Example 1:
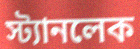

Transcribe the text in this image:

স্ট্যানলেক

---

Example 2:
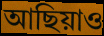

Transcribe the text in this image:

আছিয়াও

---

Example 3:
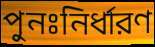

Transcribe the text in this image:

পুনঃনির্ধারণ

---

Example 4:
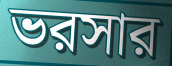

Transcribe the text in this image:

ভরসার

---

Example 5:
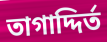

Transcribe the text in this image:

তাগাদ্দির্ত